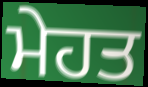
ਮੇਹਤ